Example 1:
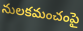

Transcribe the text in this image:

నులకమంచంపై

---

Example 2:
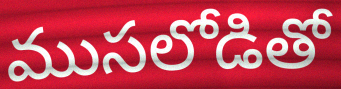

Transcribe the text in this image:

ముసలోడితో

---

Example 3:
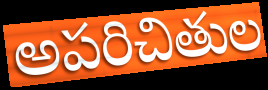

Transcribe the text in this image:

అపరిచితుల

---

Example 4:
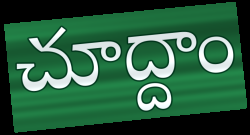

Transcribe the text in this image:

చూద్దాం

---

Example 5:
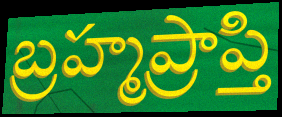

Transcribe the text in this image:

బ్రహ్మప్రాప్తి